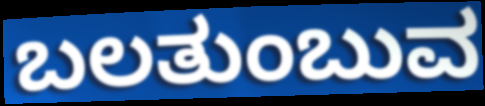
ಬಲತುಂಬುವ